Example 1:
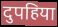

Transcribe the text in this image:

दुपहिया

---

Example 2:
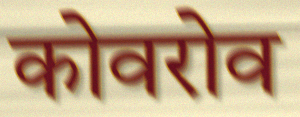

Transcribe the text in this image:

कोवरोव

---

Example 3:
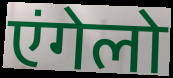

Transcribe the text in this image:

एंगेलो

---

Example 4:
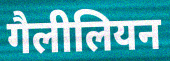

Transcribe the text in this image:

गैलीलियन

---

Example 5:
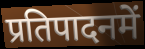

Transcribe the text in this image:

प्रतिपादनमें